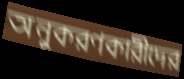
অনুকরণকারীদের